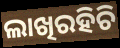
ଲାଖିରହିଚି